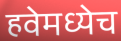
हवेमध्येच